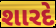
શારદે